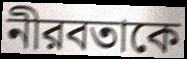
নীরবতাকে